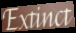
Extinct